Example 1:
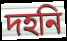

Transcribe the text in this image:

দহনি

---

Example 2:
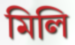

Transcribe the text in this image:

মিলি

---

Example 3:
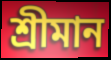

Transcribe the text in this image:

শ্ৰীমান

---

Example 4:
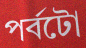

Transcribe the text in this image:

পৰ্বটো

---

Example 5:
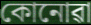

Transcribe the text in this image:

কোনোৱা